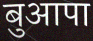
बुआपा